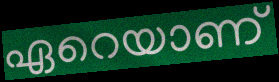
ഏറെയാണ്